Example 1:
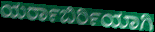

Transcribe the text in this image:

ಯರ್ರಾಬಿರ್ರಿಯಾಗಿ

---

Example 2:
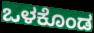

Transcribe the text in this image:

ಒಳಕೊಂಡ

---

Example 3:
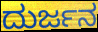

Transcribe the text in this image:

ದುರ್ಜನ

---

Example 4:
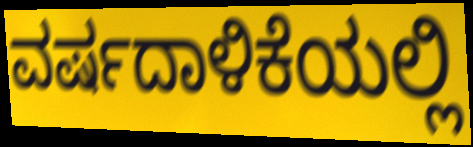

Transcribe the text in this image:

ವರ್ಷದಾಳಿಕೆಯಲ್ಲಿ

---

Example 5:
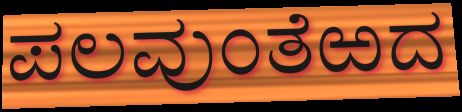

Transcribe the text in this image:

ಪಲವುಂತೆಱದ